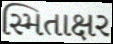
સ્મિતાક્ષર